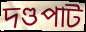
দণ্ডপাট